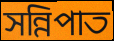
সন্নিপাত